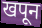
खपून